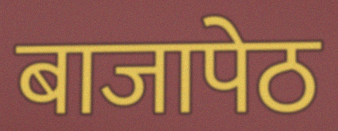
बाजापेठ